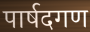
पार्षदगण